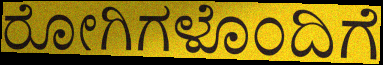
ರೋಗಿಗಳೊಂದಿಗೆ